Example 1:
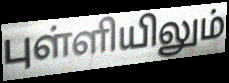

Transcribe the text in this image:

புள்ளியிலும்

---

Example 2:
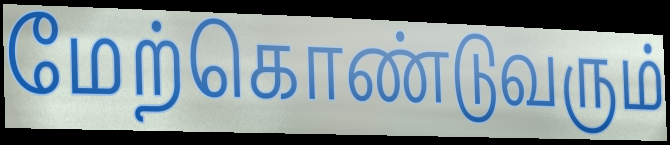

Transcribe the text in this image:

மேற்கொண்டுவரும்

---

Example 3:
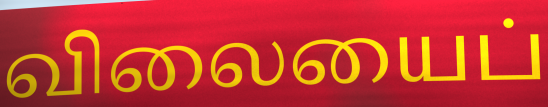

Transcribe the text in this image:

விலையைப்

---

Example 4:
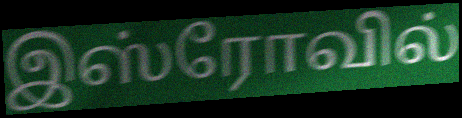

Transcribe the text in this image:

இஸ்ரோவில்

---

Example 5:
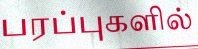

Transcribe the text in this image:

பரப்புகளில்